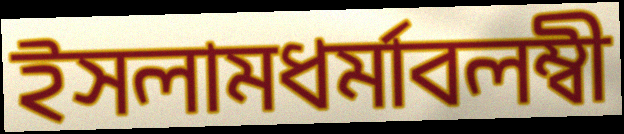
ইসলামধর্মাবলম্বী